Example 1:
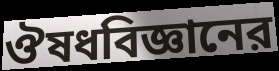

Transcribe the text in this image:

ঔষধবিজ্ঞানের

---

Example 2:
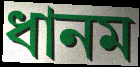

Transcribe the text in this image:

ধানম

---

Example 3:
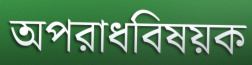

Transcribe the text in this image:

অপরাধবিষয়ক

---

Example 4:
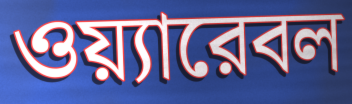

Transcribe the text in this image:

ওয়্যারেবল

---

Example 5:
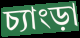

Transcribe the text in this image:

চ্যাংড়া